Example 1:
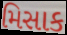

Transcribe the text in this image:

મિસાક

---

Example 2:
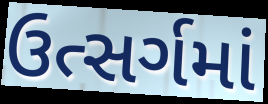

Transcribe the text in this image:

ઉત્સર્ગમાં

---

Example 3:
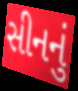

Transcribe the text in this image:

સીનનું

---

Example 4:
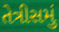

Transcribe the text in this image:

તેત્રીસમું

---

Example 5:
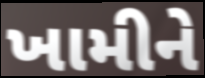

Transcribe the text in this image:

ખામીને